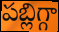
పబ్లిగ్గా